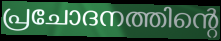
പ്രചോദനത്തിന്റെ